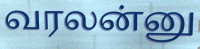
வரலன்னு